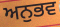
ਅਨੁਭਵ